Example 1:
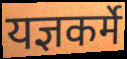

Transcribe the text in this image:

यज्ञकर्मे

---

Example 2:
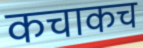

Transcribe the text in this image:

कचाकच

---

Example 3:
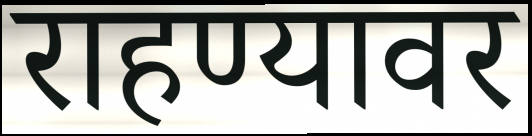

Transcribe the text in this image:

राहण्यावर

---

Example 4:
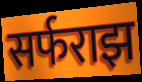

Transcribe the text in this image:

सर्फराझ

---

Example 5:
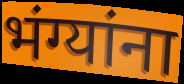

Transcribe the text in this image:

भंग्यांना